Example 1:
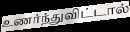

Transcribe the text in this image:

உணர்ந்துவிட்டால்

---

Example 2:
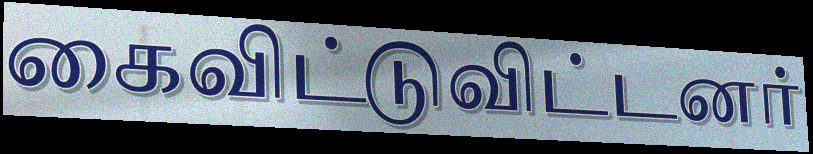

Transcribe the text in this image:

கைவிட்டுவிட்டனர்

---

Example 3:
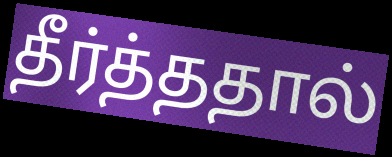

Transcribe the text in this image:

தீர்த்ததால்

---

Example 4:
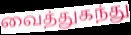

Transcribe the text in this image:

வைத்துகந்து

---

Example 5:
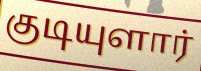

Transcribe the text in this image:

குடியுளார்